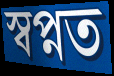
স্বপ্নত